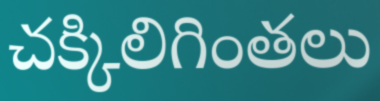
చక్కిలిగింతలు